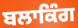
ਬਲਾਕਿੰਗ